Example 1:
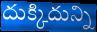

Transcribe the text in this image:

దుక్కిదున్ని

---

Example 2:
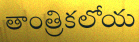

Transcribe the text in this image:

తాంత్రికలోయ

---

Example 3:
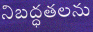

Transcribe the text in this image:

నిబద్ధతలను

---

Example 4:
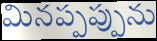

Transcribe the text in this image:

మినప్పప్పును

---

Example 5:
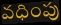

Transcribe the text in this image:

వధింపు